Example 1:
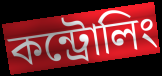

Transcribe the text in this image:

কন্ট্রোলিং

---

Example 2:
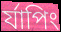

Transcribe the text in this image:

র্যাপিং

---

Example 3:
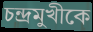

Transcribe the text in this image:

চন্দ্রমুখীকে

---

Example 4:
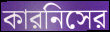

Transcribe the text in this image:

কারনিসের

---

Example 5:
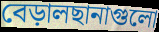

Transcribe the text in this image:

বেড়ালছানাগুলো